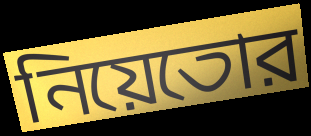
নিয়েতোর